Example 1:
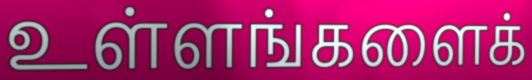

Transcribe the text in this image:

உள்ளங்களைக்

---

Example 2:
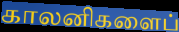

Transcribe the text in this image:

காலனிகளைப்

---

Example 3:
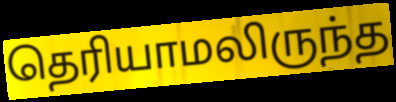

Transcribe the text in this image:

தெரியாமலிருந்த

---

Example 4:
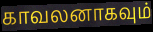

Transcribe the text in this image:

காவலனாகவும்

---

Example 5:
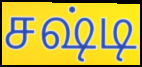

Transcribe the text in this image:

சஷ்டி